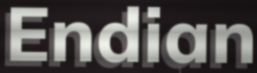
Endian